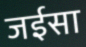
जईसा